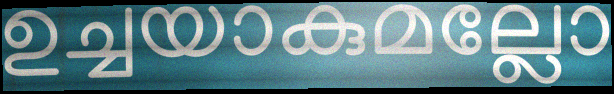
ഉച്ചയാകുമല്ലോ